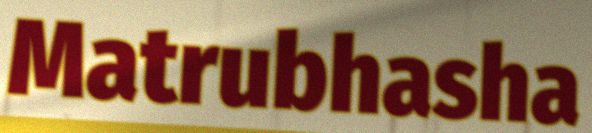
Matrubhasha